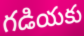
గడియకు